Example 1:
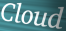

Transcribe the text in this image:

Cloud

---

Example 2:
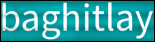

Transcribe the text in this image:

baghitlay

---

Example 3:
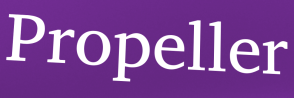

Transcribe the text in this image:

Propeller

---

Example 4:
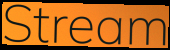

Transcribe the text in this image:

Stream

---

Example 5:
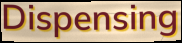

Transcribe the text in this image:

Dispensing